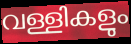
വള്ളികളും